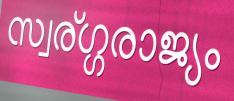
സ്വര്ഗ്ഗരാജ്യം